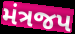
મંત્રજપ